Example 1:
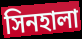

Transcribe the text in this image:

সিনহালা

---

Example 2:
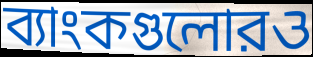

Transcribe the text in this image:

ব্যাংকগুলোরও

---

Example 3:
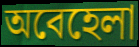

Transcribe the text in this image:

অবেহেলা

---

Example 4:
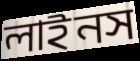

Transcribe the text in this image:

লাইনস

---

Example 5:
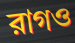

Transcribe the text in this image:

রাগও